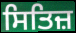
ਸਿਤਿਜ਼